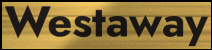
Westaway